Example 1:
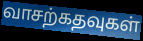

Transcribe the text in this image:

வாசற்கதவுகள்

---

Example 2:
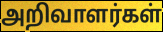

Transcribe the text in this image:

அறிவாளர்கள்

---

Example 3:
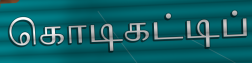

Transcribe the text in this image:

கொடிகட்டிப்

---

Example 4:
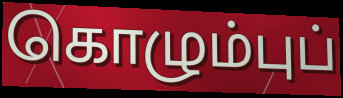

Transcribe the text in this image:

கொழும்புப்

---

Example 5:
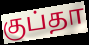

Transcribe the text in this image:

குப்தா